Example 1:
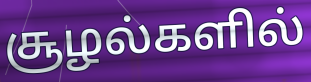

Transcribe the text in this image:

சூழல்களில்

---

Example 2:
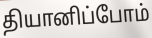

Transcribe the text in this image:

தியானிப்போம்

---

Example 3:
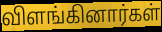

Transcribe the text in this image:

விளங்கினார்கள்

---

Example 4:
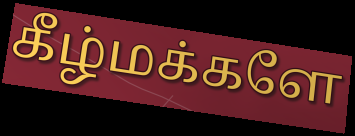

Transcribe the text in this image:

கீழ்மக்களே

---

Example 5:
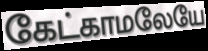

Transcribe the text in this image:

கேட்காமலேயே